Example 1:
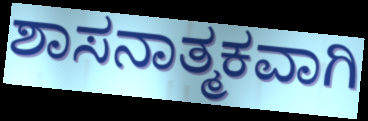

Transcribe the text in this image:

ಶಾಸನಾತ್ಮಕವಾಗಿ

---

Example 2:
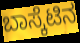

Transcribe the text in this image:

ಬಾಸ್ಕೆಟಿನ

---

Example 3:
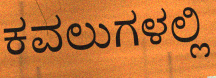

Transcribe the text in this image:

ಕವಲುಗಳಲ್ಲಿ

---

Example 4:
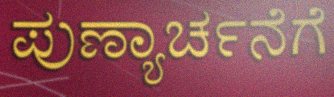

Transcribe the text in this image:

ಪುಣ್ಯಾರ್ಚನೆಗೆ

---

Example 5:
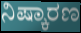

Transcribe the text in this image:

ನಿಷ್ಕಾರಣ